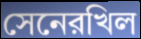
সেনেরখিল